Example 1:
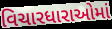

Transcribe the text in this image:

વિચારધારાઓમાં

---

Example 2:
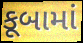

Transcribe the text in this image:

કૂબામાં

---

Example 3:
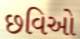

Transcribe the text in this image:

છવિઓ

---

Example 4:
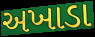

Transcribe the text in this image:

અખાડા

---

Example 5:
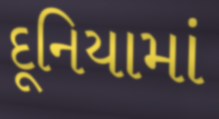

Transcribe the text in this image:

દૂનિયામાં